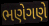
ભણેગણે